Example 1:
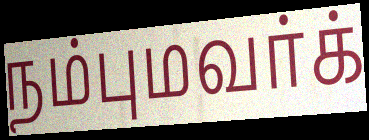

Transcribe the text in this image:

நம்புமவர்க்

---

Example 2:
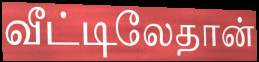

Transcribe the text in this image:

வீட்டிலேதான்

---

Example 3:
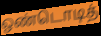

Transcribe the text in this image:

ஒண்டொடித்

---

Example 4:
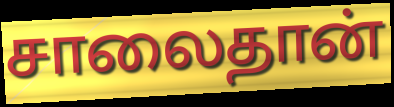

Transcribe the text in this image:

சாலைதான்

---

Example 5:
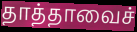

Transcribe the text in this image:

தாத்தாவைச்